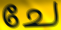
ചേ